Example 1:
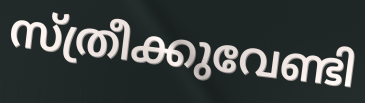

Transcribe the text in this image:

സ്ത്രീക്കുവേണ്ടി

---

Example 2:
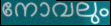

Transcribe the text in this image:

നോവലും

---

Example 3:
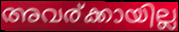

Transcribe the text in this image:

അവര്ക്കായില്ല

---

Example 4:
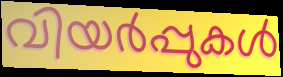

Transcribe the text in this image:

വിയർപ്പുകൾ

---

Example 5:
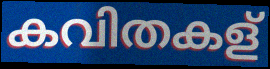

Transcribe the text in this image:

കവിതകള്